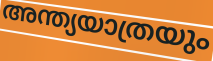
അന്ത്യയാത്രയും